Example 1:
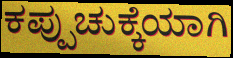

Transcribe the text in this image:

ಕಪ್ಪುಚುಕ್ಕೆಯಾಗಿ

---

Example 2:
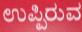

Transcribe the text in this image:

ಉಪ್ಪಿರುವ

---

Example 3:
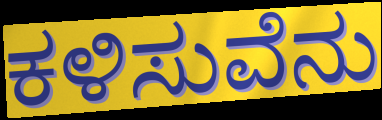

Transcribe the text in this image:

ಕಳಿಸುವೆನು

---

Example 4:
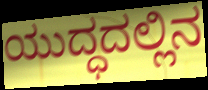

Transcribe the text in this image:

ಯುದ್ಧದಲ್ಲಿನ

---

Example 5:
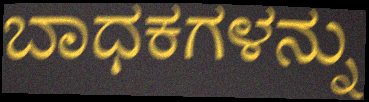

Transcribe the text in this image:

ಬಾಧಕಗಳನ್ನು